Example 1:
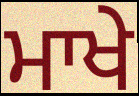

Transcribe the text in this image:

ਮਾਖੇ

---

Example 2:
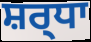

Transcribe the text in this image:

ਸ਼ਰ੍ਧਾ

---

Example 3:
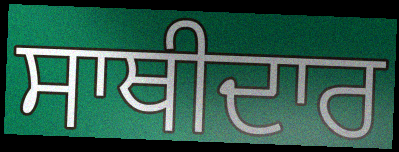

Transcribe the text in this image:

ਸਾਥੀਦਾਰ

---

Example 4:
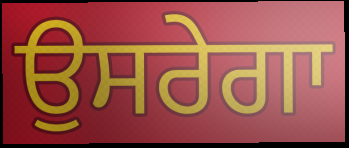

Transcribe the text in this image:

ਉਸਰੇਗਾ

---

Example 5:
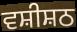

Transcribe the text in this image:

ਵਸ਼ੀਸ਼ਠ